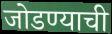
जोडण्याची